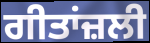
ਗੀਤਾਂਜ਼ਲੀ